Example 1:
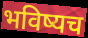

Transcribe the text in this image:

भविष्यच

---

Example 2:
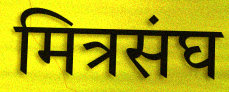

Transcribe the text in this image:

मित्रसंघ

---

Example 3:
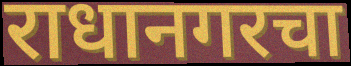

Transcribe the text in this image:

राधानगरचा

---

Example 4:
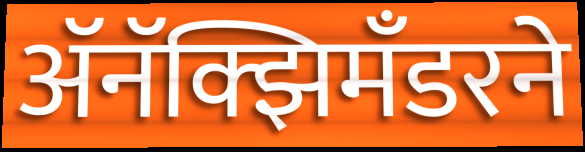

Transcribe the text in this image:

ॲनॅक्झिमँडरने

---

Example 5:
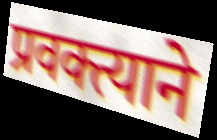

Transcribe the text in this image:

प्रवक्त्याने